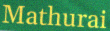
Mathurai